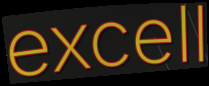
excell